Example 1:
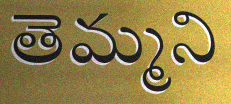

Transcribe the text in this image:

తెమ్మని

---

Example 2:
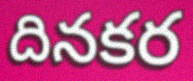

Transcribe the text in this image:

దినకర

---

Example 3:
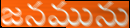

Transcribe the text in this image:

జనమును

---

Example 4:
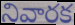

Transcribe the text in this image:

నివారక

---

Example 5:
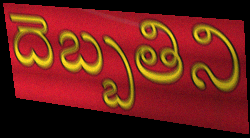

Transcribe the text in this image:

దెబ్బతిని